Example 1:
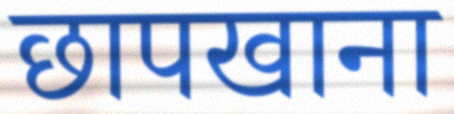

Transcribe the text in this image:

छापखाना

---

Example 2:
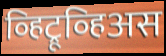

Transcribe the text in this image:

व्हिट्रूव्हिअस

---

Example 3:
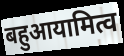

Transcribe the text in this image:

बहुआयामित्व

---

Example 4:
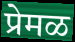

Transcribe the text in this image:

प्रेमळ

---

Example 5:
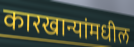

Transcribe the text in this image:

कारखान्यांमधील